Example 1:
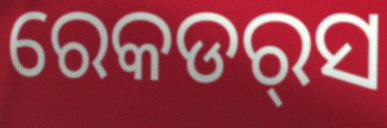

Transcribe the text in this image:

ରେକଡର୍‌ସ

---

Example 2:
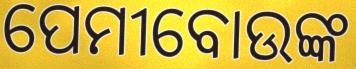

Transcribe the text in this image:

ପେମୀବୋଉଙ୍କ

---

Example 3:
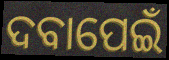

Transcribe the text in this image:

ଦବାପେଇଁ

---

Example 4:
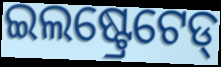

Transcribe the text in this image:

ଇଲଷ୍ଟ୍ରେଟେଡ୍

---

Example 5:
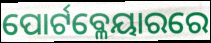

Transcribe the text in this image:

ପୋର୍ଟବ୍ଳେୟାରରେ